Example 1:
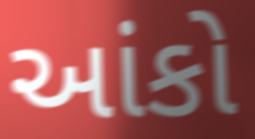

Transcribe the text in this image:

આંકો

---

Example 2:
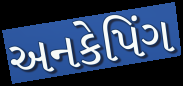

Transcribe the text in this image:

અનકેપિંગ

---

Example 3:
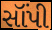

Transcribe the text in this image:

સૉંપી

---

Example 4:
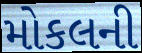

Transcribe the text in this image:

મોકલની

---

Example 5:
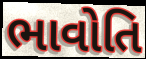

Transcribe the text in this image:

ભાવોતિ